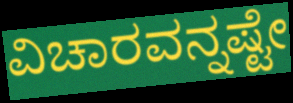
ವಿಚಾರವನ್ನಷ್ಟೇ